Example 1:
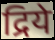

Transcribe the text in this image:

द्रिये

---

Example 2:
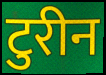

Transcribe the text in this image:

टुरीन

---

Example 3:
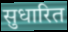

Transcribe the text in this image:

सुधारित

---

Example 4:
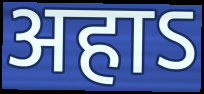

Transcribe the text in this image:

अहाऽ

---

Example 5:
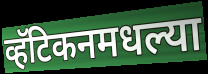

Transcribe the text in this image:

व्हॅटिकनमधल्या